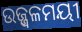
ଉଜ୍ଜ୍ୱଳମୟୀ